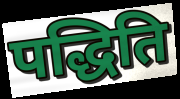
पद्धिति